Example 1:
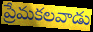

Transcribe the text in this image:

ప్రేమకలవాడు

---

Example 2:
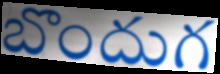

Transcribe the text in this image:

బొందుగ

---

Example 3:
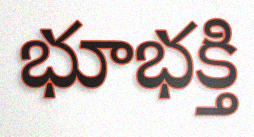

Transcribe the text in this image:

భూభక్తి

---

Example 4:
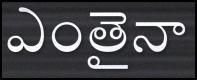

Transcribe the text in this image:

ఎంతైనా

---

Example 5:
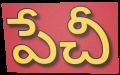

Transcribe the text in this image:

పేచీ